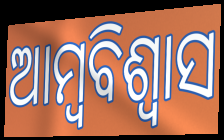
ଆମ୍ବବିଶ୍ଵାସ